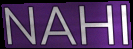
NAHI